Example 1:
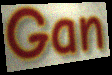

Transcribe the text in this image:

Gan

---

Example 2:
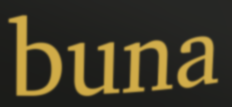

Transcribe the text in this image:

buna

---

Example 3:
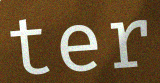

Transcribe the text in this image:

ter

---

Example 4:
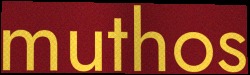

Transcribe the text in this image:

muthos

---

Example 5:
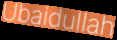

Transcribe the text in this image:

Ubaidullah